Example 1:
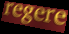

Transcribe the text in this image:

regere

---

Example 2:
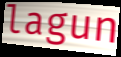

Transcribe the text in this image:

lagun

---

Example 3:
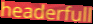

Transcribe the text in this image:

headerfull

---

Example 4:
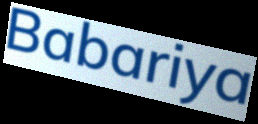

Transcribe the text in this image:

Babariya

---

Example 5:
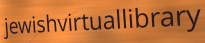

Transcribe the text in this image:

jewishvirtuallibrary